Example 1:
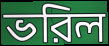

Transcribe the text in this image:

ভরিল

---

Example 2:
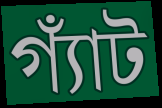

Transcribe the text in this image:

গ্যাঁট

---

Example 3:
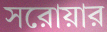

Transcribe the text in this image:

সরোয়ার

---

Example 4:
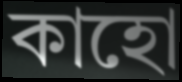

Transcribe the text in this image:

কাহো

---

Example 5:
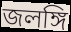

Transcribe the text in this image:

জলঙ্গি